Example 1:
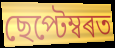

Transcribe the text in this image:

ছেপ্টেম্বৰত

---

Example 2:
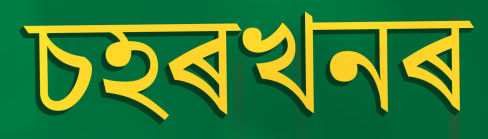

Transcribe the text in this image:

চহৰখনৰ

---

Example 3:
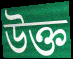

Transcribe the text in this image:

উক্ত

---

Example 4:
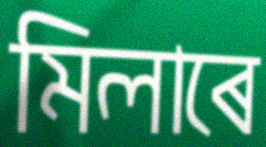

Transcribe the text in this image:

মিলাৰে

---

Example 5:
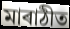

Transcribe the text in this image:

মাৰাঠীত